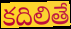
కదిలితే